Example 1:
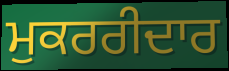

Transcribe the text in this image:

ਮੁਕਰਰੀਦਾਰ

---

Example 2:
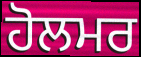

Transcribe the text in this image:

ਹੋਲਮਰ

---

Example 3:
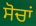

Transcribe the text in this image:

ਸੋਚਾਂ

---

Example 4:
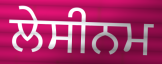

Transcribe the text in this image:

ਲੇਸੀਨਮ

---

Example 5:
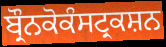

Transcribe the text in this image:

ਬ੍ਰੌਨਕੋਕੰਸਟ੍ਰਕਸ਼ਨ